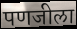
पणजीला